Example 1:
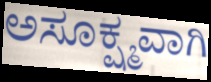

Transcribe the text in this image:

ಅಸೂಕ್ಷ್ಮವಾಗಿ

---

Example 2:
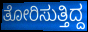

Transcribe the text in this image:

ತೋರಿಸುತ್ತಿದ್ದ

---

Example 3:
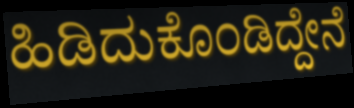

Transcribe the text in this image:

ಹಿಡಿದುಕೊಂಡಿದ್ದೇನೆ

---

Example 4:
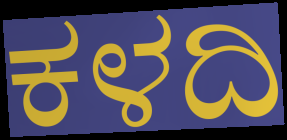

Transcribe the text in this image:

ಕಳದಿ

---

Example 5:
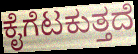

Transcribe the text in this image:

ಕೈಗೆಟಕುತ್ತದೆ